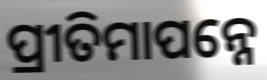
ପ୍ରୀତିମାପନ୍ନେ